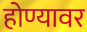
होण्यावर